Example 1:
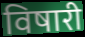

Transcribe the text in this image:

विषारी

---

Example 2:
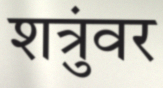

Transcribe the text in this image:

शत्रुंवर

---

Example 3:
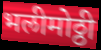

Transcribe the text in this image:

भलीमोठ्ठी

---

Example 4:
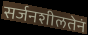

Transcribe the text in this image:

सर्जनशीलतेनं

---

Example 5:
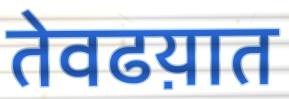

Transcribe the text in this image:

तेवढय़ात